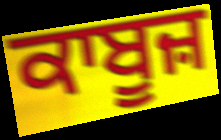
ਕਾਬੂਜ਼